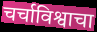
चर्चाविश्वाचा